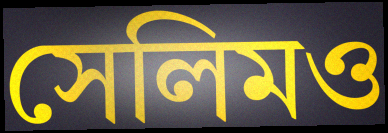
সেলিমও